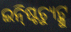
ଇନ୍ଷ୍ଟିଚ୍ୟୁଟ୍କୁ